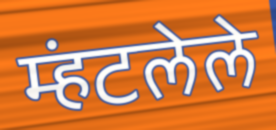
म्हंटलेले